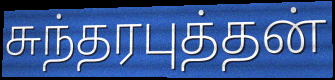
சுந்தரபுத்தன்